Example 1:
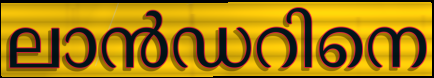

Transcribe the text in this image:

ലാൻഡറിനെ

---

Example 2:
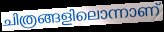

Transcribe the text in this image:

ചിത്രങ്ങളിലൊന്നാണ്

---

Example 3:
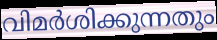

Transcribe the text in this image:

വിമർശിക്കുന്നതും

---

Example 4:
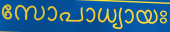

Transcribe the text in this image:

സോപാധ്യായഃ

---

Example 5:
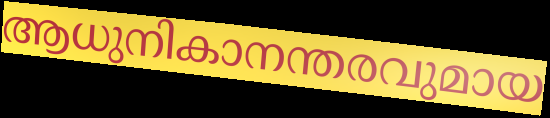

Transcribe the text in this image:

ആധുനികാനന്തരവുമായ